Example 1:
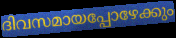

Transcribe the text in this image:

ദിവസമായപ്പോഴേക്കും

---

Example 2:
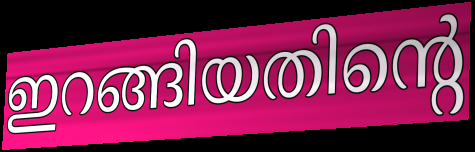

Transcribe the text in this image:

ഇറങ്ങിയതിന്റെ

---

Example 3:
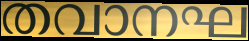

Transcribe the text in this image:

തവാനഘ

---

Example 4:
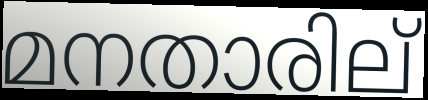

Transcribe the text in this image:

മനതാരില്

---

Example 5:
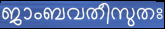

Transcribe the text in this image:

ജാംബവതീസുതഃ